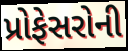
પ્રોફેસરોની